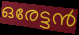
ഒരേട്ടൻ